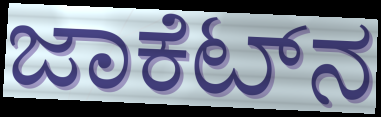
ಜಾಕೆಟ್‌ನ